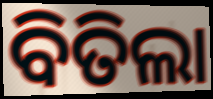
ବିତିଲା